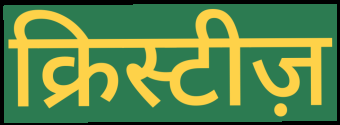
क्रिस्टीज़